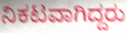
ನಿಕಟವಾಗಿದ್ದರು